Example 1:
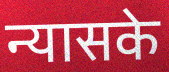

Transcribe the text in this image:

न्यासके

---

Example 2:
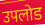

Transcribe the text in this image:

उपलोड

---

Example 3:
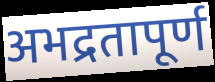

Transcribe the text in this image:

अभद्रतापूर्ण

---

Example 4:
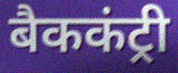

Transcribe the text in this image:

बैककंट्री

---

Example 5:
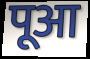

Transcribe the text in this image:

पूआ